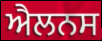
ਐਲਨਸ